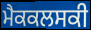
ਮੈਕਕਲਸਕੀ